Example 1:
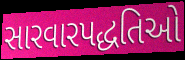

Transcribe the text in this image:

સારવારપદ્ધતિઓ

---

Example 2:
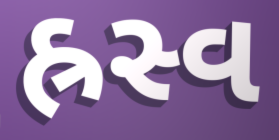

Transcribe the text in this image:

હ્રસ્વ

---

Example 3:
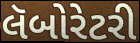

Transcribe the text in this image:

લૅબોરેટરી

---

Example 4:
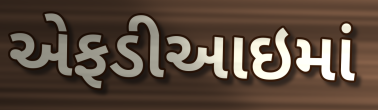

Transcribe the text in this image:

એફડીઆઇમાં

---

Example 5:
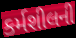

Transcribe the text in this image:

કર્મશીલની